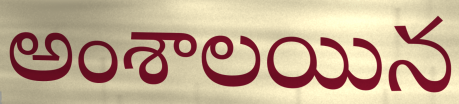
అంశాలయిన